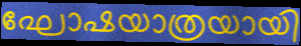
ഘോഷയാത്രയായി